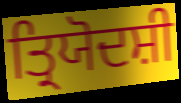
ਤ੍ਰਿਯੋਦਸ਼ੀ